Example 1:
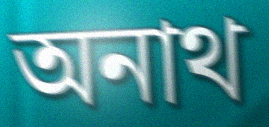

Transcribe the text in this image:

অনাথ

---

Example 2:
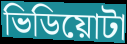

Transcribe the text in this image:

ভিডিয়োটা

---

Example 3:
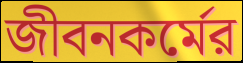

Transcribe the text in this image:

জীবনকর্মের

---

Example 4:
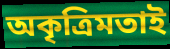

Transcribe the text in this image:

অকৃত্রিমতাই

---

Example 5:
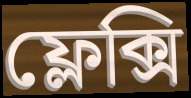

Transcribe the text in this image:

ফ্লেক্সি